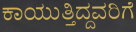
ಕಾಯುತ್ತಿದ್ದವರಿಗೆ